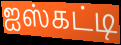
ஐஸ்கட்டி